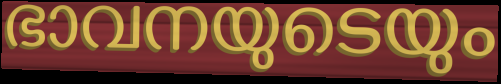
ഭാവനയുടെയും